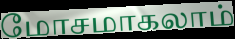
மோசமாகலாம்